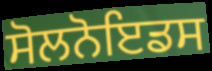
ਸੋਲਨੋਇਡਸ